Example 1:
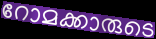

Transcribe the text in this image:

റോമക്കാരുടെ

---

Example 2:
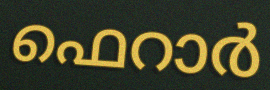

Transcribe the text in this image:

ഫെറാർ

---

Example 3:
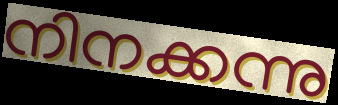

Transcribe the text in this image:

നിനക്കന്നു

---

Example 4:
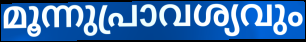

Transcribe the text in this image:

മൂന്നുപ്രാവശ്യവും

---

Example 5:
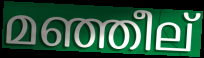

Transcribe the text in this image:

മഞ്ഞീല്